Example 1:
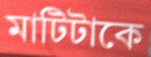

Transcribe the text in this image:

মাটিটাকে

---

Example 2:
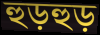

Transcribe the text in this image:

হুড়হুড়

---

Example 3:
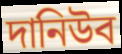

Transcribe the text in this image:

দানিউব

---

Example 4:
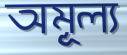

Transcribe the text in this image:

অমূল্য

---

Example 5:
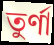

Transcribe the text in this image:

তুর্ণা